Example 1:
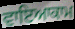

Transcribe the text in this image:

ਵਾਇਆਕਾਮ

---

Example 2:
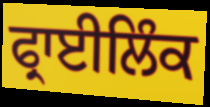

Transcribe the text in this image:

ਫ੍ਰਾਈਲਿੰਕ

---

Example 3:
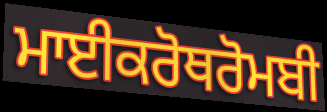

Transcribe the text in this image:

ਮਾਈਕਰੋਥਰੋਮਬੀ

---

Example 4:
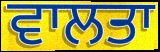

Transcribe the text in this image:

ਵਾਲਤਾ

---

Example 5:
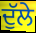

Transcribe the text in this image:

ਦੁੱਲੇ